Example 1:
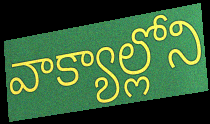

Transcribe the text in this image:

వాక్యాల్లోని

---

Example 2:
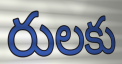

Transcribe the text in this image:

రులకు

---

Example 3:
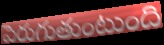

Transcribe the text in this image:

పెరుగుతుంటుంది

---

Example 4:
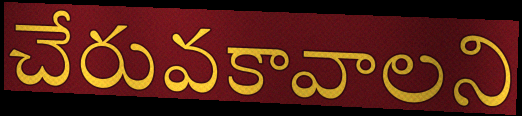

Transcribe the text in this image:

చేరువకావాలని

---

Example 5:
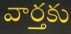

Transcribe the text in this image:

వార్తకు